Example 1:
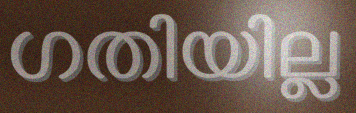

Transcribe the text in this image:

ഗതിയില്ല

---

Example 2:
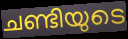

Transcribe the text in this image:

ചണ്ടിയുടെ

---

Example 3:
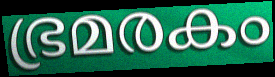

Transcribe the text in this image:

ഭ്രമരകം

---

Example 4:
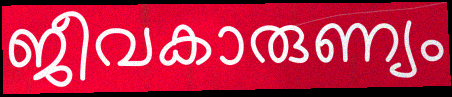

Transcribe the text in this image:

ജീവകാരുണ്യം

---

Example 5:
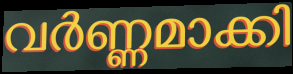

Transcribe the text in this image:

വർണ്ണമാക്കി